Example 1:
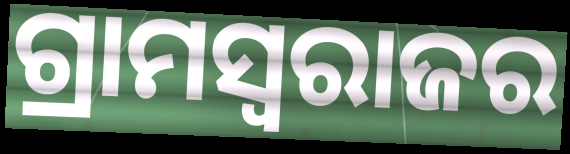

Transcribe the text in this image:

ଗ୍ରାମସ୍ୱରାଜର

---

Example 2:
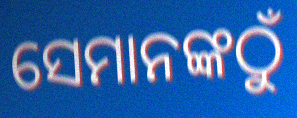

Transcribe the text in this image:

ସେମାନଙ୍କଠୁଁ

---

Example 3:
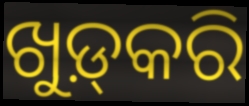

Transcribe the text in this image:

ଖୁଡ଼୍‍କରି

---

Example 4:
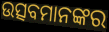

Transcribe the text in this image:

ଉତ୍ସବମାନଙ୍କର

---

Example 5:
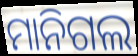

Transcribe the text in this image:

ମାନିଗଲ